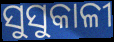
ସୁସୁକାଳୀ